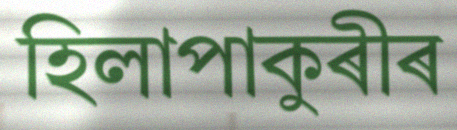
হিলাপাকুৰীৰ